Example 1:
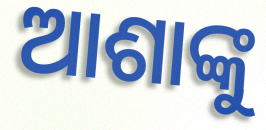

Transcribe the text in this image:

ଆଶାଙ୍କୁ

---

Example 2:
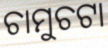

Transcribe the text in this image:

ଚାମୁଚଟା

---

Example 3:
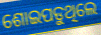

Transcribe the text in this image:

ଶୋଇପଡୁଥିଲେ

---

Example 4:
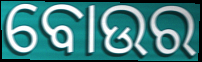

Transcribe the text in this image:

ବୋଉର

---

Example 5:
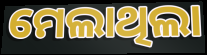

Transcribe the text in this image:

ମେଲାଥିଲା